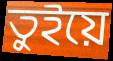
তুইয়ে